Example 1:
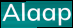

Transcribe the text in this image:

Alaap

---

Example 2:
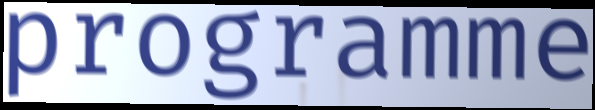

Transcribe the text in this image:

programme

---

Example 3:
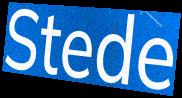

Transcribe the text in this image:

Stede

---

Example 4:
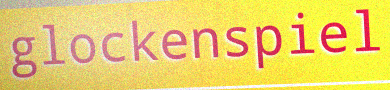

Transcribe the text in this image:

glockenspiel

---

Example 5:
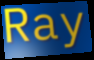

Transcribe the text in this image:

Ray